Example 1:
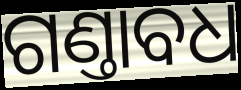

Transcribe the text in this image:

ଗଣ୍ତାବଧ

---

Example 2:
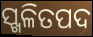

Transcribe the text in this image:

ସ୍ଖଳିତପଦ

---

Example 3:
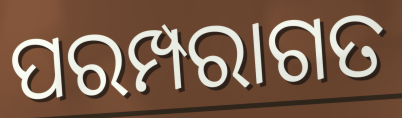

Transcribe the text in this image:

ପରମ୍ପରାଗତ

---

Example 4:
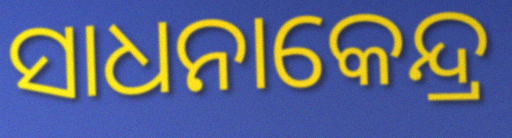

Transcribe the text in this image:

ସାଧନାକେନ୍ଦ୍ର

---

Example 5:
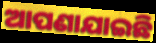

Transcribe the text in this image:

ଆପଣାଯାଇଛି